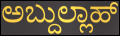
ಅಬ್ದುಲ್ಲಾಹ್